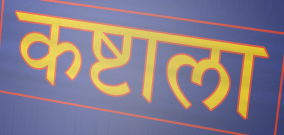
कष्टाला